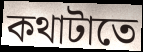
কথাটাতে